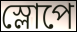
স্লোপে